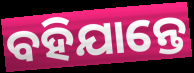
ବହିଯାନ୍ତେ